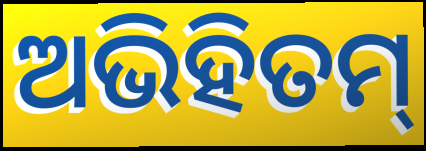
ଅଭିହିତମ୍